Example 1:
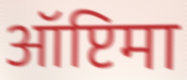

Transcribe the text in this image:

ऑप्टिमा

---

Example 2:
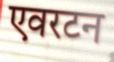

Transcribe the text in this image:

एवरटन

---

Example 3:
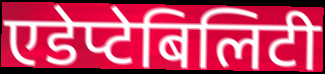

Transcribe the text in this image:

एडेप्टेबिलिटी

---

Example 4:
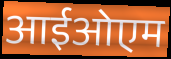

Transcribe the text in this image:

आईओएम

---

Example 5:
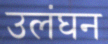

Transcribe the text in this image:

उलंघन